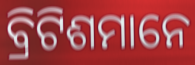
ବ୍ରିଟିଶମାନେ